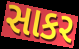
સાકર